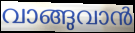
വാങ്ങുവാൻ